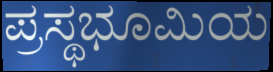
ಪ್ರಸ್ಥಭೂಮಿಯ